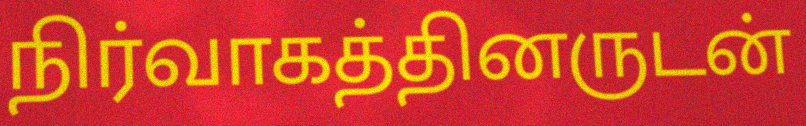
நிர்வாகத்தினருடன்